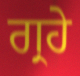
ਗ੍ਰਹੇ